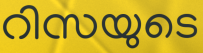
റിസയുടെ